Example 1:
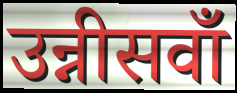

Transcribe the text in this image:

उन्नीसवाँ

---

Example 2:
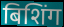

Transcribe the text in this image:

बिशिंग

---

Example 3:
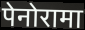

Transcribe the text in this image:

पेनोरामा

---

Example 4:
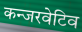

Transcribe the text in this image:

कन्जरवेटिव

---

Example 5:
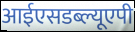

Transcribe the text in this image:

आईएसडब्ल्यूएपी